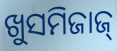
ଖୁସମିଜାଜ୍